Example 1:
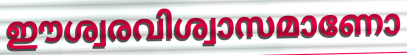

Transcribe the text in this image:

ഈശ്വരവിശ്വാസമാണോ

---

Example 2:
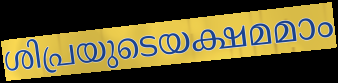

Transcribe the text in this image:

ശിപ്രയുടെയക്ഷമമാം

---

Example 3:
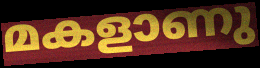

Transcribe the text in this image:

മകളാണു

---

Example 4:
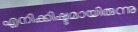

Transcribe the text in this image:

എനിക്കിഷ്ടമായിരുന്നു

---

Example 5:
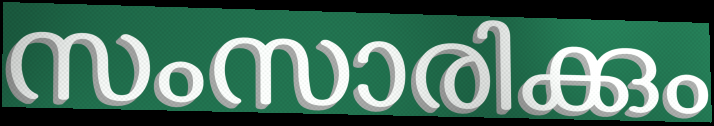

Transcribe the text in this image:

സംസാരിക്കും